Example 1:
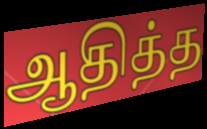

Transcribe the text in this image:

ஆதித்த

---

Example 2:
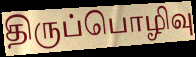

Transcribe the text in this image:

திருப்பொழிவு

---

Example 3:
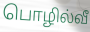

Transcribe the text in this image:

பொழில்வீ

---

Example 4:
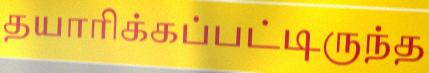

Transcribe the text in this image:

தயாரிக்கப்பட்டிருந்த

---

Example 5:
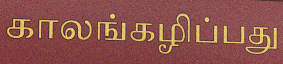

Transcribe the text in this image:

காலங்கழிப்பது